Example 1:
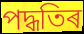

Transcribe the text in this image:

পদ্ধতিৰ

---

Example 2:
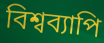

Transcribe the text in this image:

বিশ্বব্যাপি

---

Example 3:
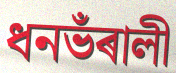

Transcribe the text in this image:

ধনভঁৰালী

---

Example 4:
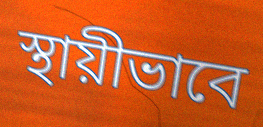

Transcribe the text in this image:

স্থায়ীভাবে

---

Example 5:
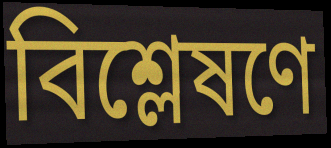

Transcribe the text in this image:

বিশ্লেষণে